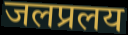
जलप्रलय